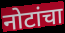
नोटांचा